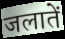
जलातें